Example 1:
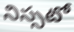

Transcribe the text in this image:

నిస్సటో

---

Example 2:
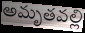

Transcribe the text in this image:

అమృతవల్లి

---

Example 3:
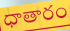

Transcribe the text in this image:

ధాతారం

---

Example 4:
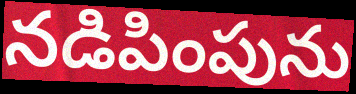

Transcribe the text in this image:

నడిపింపును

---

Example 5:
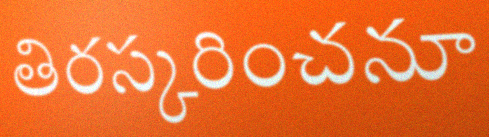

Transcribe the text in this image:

తిరస్కరించనూ